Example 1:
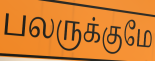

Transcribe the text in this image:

பலருக்குமே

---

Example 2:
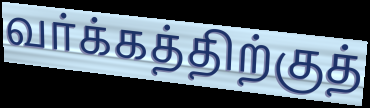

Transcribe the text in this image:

வர்க்கத்திற்குத்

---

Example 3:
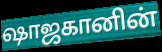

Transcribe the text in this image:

ஷாஜகானின்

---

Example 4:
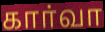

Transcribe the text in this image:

கார்வா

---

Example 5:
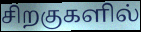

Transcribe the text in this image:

சிறகுகளில்